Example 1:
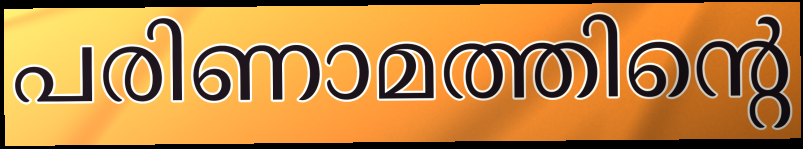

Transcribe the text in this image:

പരിണാമത്തിന്റെ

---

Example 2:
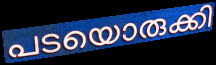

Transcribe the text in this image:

പടയൊരുക്കി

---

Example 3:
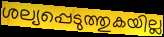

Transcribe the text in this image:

ശല്യപ്പെടുത്തുകയില്ല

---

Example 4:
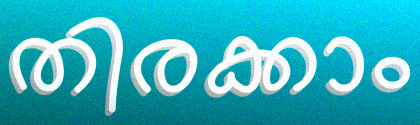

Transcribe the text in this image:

തിരക്കാം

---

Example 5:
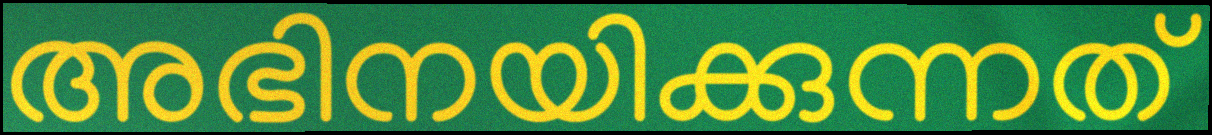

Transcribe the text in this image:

അഭിനയിക്കുന്നത്